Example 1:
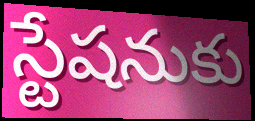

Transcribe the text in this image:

స్టేషనుకు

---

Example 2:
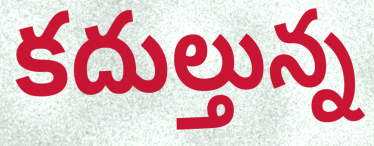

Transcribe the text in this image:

కదుల్తున్న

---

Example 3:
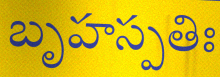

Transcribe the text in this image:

బృహస్పతిః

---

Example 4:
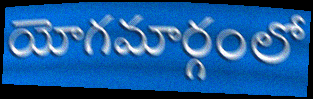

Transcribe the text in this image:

యోగమార్గంలో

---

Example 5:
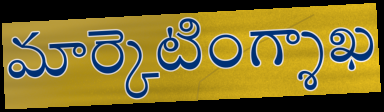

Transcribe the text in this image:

మార్కెటింగ్శాఖ